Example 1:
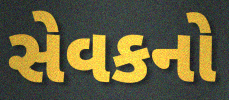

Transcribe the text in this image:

સેવકનો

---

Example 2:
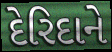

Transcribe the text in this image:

દેરિદાને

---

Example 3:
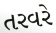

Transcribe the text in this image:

તરવરે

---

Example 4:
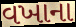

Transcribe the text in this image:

વખાના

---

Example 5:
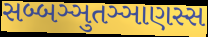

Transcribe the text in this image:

સબ્બઞ્ઞુતઞ્ઞાણસ્સ